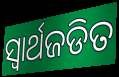
ସ୍ଵାର୍ଥଜଡିତ